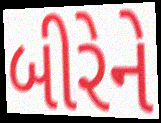
બીરેને